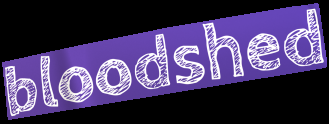
bloodshed